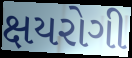
ક્ષયરોગી